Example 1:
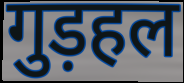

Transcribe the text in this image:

गुड़हल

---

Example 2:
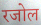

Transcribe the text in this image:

रजोल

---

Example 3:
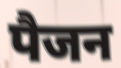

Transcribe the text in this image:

पैजन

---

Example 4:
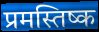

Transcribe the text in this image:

प्रमस्तिष्क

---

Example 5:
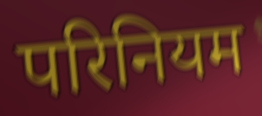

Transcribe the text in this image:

परिनियम